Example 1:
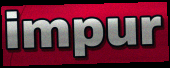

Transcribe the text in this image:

impur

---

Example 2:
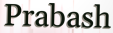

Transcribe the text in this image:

Prabash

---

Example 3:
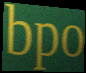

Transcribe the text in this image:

bpo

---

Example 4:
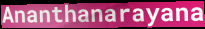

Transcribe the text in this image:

Ananthanarayana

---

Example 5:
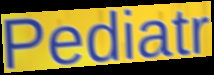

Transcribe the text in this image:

Pediatr